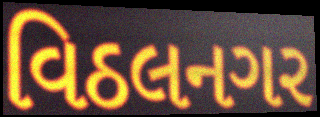
વિઠલનગર